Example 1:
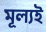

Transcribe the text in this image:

মূল্যই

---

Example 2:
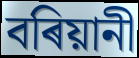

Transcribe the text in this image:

বৰিয়ানী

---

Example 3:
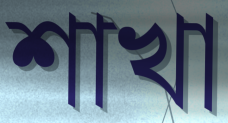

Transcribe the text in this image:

শাখা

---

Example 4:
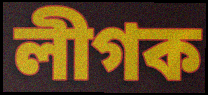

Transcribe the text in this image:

লীগক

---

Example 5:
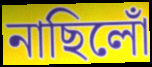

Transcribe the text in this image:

নাছিলোঁ